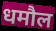
धमौल